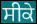
ਸੀਕੇ